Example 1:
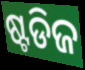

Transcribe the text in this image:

ଷ୍ଟଡିଜ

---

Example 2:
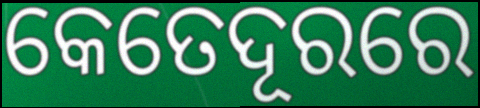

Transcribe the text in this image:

କେତେଦୂରରେ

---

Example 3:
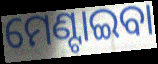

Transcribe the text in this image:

ମେଣ୍ଟାଇବା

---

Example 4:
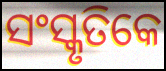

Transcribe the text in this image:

ସଂସ୍କୃତିକେ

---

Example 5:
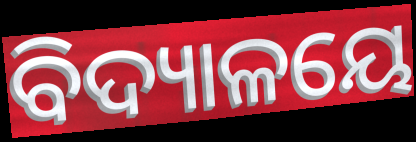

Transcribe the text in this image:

ବିଦ୍ୟାଳୟେ